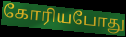
கோரியபோது